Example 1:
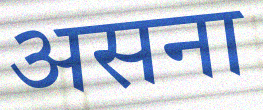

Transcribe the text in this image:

असना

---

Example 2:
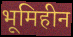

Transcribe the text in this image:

भूमिहीन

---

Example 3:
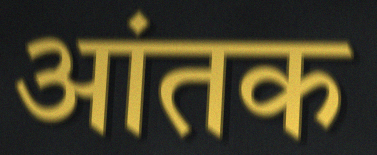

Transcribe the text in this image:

आंतक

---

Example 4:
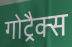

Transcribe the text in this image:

गोट्रैक्स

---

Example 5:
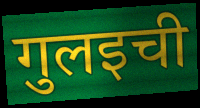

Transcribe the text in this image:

गुलइची